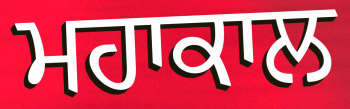
ਮਹਾਕਾਲ